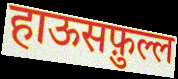
हाऊसफ़ुल्ल